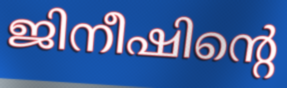
ജിനീഷിന്റെ